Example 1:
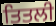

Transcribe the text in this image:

ਤਿਤਲੀ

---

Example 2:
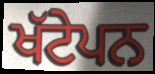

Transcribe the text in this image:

ਖੱਟੇਪਨ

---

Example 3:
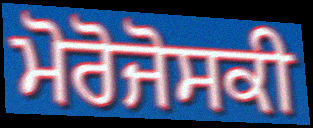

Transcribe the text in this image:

ਮੋਰੋਜੋਸਕੀ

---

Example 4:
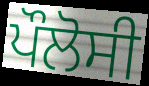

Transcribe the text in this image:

ਪੌਲੋਸੀ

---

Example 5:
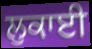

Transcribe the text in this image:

ਲੁਕਾਈ